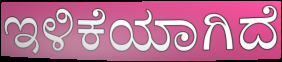
ಇಳಿಕೆಯಾಗಿದೆ